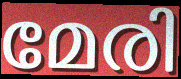
മേരി